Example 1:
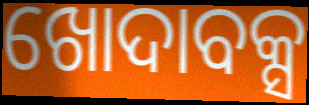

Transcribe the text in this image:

ଖୋଦାବକ୍ସ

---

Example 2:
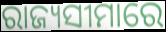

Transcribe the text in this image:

ରାଜ୍ୟସୀମାରେ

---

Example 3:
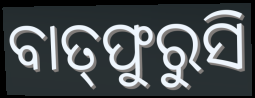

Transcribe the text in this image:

ବାତ୍‌ଫୁରୁସି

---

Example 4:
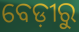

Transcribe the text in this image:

ବେଡ଼ୀରୁ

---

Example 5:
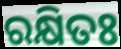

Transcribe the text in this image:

ରକ୍ଷିତଃ